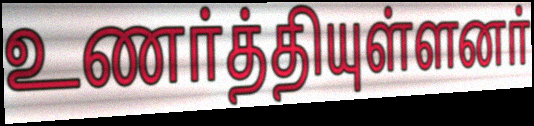
உணர்த்தியுள்ளனர்